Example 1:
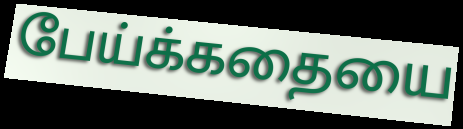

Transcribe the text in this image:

பேய்க்கதையை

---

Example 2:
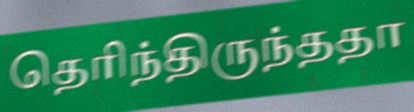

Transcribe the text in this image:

தெரிந்திருந்ததா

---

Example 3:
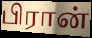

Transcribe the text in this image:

பிரான்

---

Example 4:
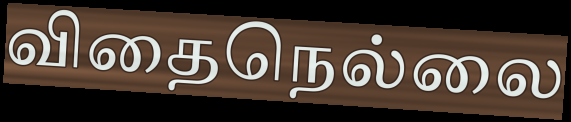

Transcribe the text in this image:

விதைநெல்லை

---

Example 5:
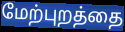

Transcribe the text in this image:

மேற்புறத்தை